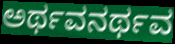
ಅರ್ಥವನರ್ಥವ